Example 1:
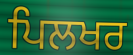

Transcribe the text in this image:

ਪਿਲਖਰ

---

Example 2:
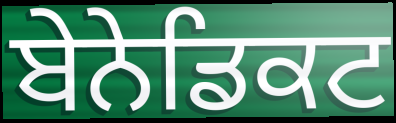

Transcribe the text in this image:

ਬੇਨੇਡਿਕਟ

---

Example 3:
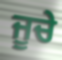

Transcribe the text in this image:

ਜੂਚੇ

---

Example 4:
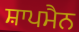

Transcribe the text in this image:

ਸ਼ਾਪਮੈਨ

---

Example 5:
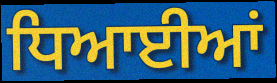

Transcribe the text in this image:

ਧਿਆਈਆਂ